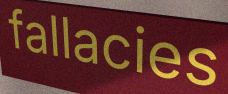
fallacies